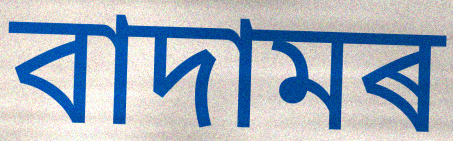
বাদামৰ